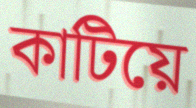
কাটিয়ে